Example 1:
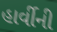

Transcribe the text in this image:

હાર્વીની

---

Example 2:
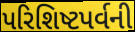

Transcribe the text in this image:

પરિશિષ્ટપર્વની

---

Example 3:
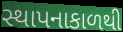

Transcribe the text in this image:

સ્થાપનાકાળથી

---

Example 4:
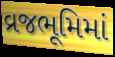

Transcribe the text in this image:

વ્રજભૂમિમાં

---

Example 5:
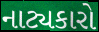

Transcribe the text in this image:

નાટ્યકારો